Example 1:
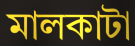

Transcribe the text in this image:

মালকাটা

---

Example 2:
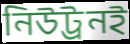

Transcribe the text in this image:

নিউট্রনই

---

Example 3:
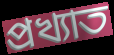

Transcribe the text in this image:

প্রখ্যাত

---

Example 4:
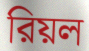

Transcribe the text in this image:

রিয়ল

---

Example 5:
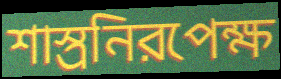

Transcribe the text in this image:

শাস্ত্রনিরপেক্ষ